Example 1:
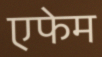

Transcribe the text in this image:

एफेम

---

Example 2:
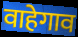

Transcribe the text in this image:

वाहेगाव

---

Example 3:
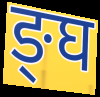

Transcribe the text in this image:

ङ्घ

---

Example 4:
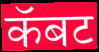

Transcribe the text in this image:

कॅबट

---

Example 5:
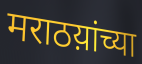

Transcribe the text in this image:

मराठय़ांच्या